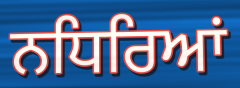
ਨਧਿਰਿਆਂ